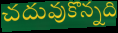
చదువుకొన్నది